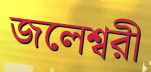
জলেশ্বরী